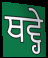
ਥਵ੍ਹੇ